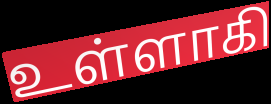
உள்ளாகி